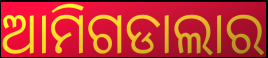
ଆମିଗଡାଲାର